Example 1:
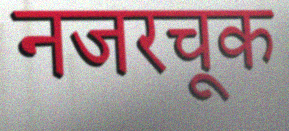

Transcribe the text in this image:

नजरचूक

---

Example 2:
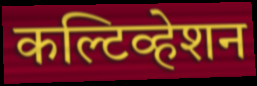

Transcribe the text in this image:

कल्टिव्हेशन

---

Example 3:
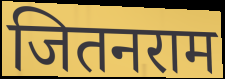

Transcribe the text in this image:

जितनराम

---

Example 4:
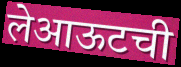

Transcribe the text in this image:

लेआऊटची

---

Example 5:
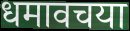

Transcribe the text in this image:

धमावचया